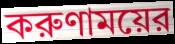
করুণাময়ের